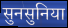
सुनसुनिया